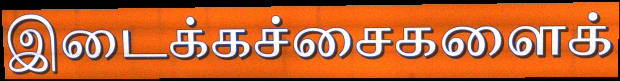
இடைக்கச்சைகளைக்